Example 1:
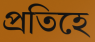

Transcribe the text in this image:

প্ৰতিহে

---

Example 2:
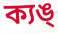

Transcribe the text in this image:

ক্যঙ্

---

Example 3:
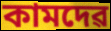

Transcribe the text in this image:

কামদেৱ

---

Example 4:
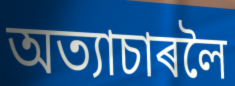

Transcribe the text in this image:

অত্যাচাৰলৈ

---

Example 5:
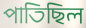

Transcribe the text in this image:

পাতিছিল